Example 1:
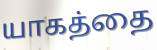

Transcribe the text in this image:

யாகத்தை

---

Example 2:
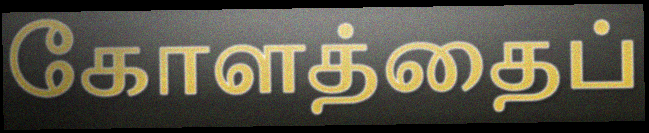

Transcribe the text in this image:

கோளத்தைப்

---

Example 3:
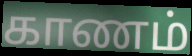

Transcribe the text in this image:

காணம்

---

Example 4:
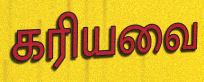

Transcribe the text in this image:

கரியவை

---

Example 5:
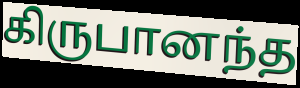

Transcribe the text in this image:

கிருபானந்த